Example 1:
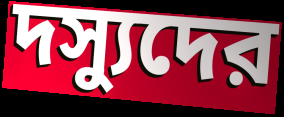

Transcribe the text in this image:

দস্যুদের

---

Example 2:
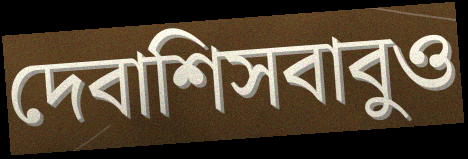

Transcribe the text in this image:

দেবাশিসবাবুও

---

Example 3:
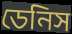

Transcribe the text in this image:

ডেনিস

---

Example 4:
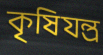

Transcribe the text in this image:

কৃষিযন্ত্র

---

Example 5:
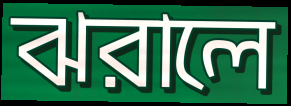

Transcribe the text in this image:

ঝরালে